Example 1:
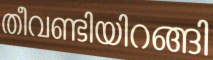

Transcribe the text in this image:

തീവണ്ടിയിറങ്ങി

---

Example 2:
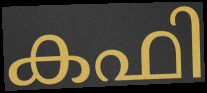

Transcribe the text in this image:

കഫി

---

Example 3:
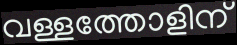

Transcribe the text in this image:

വള്ളത്തോളിന്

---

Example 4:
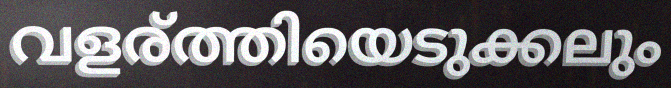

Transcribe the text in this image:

വളര്ത്തിയെടുക്കലും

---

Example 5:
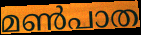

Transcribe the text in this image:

മൺപാത